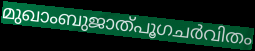
മുഖാംബുജാത്പൂഗചർവിതം